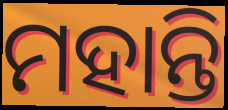
ମହାନ୍ତି